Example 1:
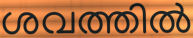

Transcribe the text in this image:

ശവത്തിൽ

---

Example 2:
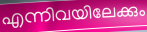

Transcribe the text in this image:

എന്നിവയിലേക്കും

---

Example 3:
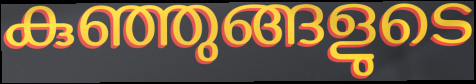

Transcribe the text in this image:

കുഞ്ഞുങ്ങളുടെ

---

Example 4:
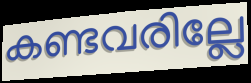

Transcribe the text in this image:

കണ്ടവരില്ലേ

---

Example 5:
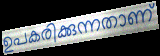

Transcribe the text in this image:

ഉപകരിക്കുന്നതാണ്